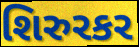
શિરુરકર